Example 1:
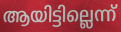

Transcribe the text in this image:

ആയിട്ടില്ലെന്ന്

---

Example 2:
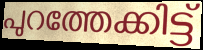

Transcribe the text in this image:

പുറത്തേക്കിട്ട്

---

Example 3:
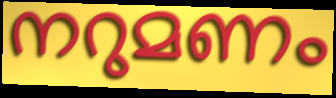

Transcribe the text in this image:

നറുമണം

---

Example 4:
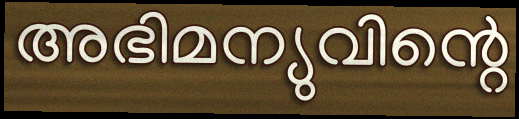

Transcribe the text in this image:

അഭിമന്യുവിന്റെ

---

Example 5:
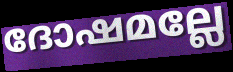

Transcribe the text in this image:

ദോഷമല്ലേ